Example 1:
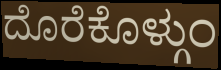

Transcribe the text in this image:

ದೊರೆಕೊಳ್ಗುಂ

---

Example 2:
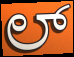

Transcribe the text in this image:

ಲ್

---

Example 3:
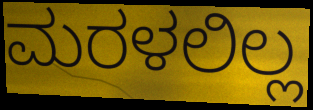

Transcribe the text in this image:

ಮರಳಲಿಲ್ಲ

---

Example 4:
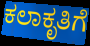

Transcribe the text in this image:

ಕಲಾಕೃತಿಗೆ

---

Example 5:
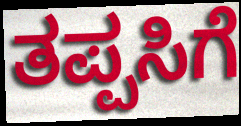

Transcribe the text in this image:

ತಪ್ಪಸಿಗೆ